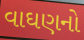
વાઘણનો